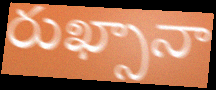
రుఖ్సానా